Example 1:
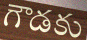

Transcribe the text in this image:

గౌడకు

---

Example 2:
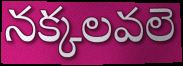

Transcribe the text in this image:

నక్కలవలె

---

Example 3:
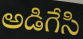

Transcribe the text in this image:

అడిగేసి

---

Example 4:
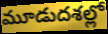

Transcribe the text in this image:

మూడుదశల్లో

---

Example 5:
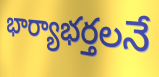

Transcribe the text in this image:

భార్యాభర్తలనే